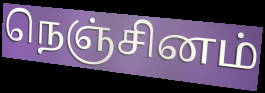
நெஞ்சினம்